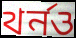
থর্নও